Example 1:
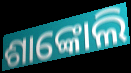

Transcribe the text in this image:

ଶାଙ୍କୋଲି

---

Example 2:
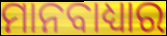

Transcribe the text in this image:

ମାନବାଧ୍ୟାର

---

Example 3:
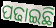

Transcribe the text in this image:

ପଢାଇଛି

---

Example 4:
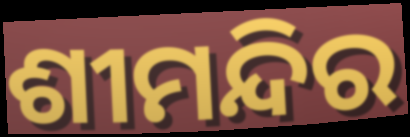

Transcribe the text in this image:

ଶୀମନ୍ଦିର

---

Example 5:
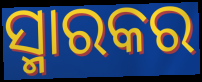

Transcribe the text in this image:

ସ୍ମାରକର